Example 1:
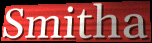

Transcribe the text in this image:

Smitha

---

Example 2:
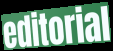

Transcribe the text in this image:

editorial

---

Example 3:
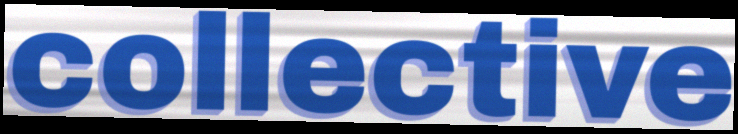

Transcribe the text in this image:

collective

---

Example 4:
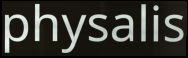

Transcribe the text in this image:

physalis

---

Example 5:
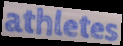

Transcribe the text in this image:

athletes